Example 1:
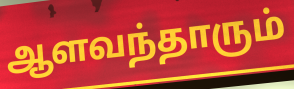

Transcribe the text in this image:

ஆளவந்தாரும்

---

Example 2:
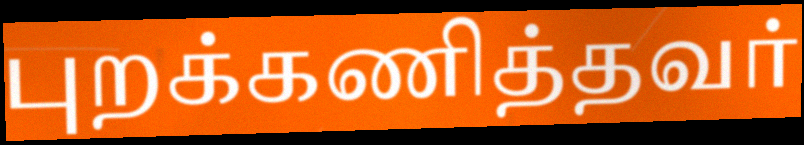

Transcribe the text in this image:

புறக்கணித்தவர்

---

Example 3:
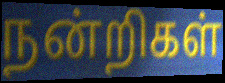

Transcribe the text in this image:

நன்றிகள்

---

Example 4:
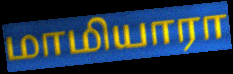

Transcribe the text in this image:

மாமியாரா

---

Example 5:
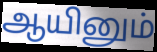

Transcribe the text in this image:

ஆயினும்